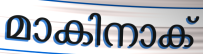
മാകിനാക്